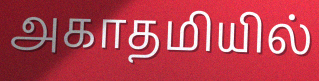
அகாதமியில்